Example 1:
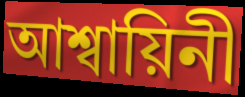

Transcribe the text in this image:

আশ্বায়িনী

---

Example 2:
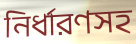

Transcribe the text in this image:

নির্ধারণসহ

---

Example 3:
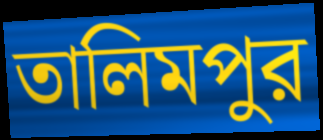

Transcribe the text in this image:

তালিমপুর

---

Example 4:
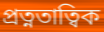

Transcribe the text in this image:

প্রত্নতাত্বিক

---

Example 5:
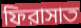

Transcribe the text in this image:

ফিরাসাত